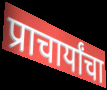
प्राचार्यांचा